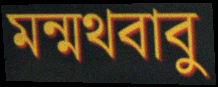
মন্মথবাবু